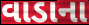
વાડાના